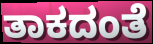
ತಾಕದಂತೆ